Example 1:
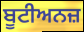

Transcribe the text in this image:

ਬੂਟੀਅਨਜ਼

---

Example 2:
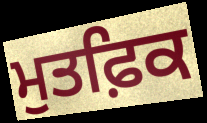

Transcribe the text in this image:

ਮੁਤਫ਼ਿਕ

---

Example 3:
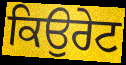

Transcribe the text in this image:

ਕਿਉਰੇਟ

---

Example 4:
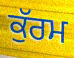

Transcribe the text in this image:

ਕੁੱਰਮ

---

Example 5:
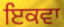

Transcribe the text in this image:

ਇਕਵਾ